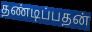
தண்டிப்பதன்